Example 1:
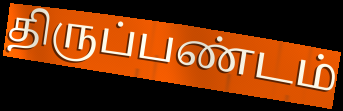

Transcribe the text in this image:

திருப்பண்டம்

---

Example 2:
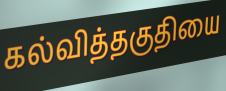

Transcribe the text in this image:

கல்வித்தகுதியை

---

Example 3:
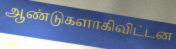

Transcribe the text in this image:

ஆண்டுகளாகிவிட்டன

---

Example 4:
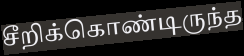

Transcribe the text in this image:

சீறிக்கொண்டிருந்த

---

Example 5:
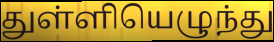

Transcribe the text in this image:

துள்ளியெழுந்து